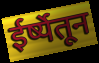
ईर्ष्येतून